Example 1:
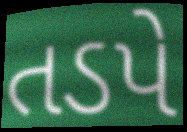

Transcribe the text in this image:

તડપે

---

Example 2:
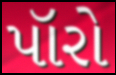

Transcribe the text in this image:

પૉરો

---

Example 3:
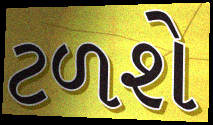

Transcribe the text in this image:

ટળશે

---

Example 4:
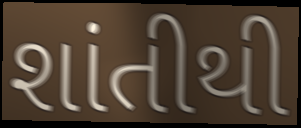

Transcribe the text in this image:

શાંતીથી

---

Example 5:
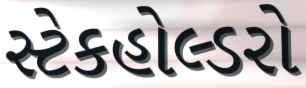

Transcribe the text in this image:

સ્ટેકહોલ્ડરો